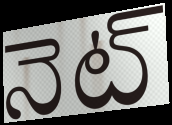
నెట్